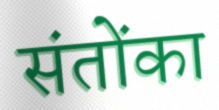
संतोंका